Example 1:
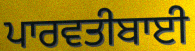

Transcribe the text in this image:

ਪਾਰਵਤੀਬਾਈ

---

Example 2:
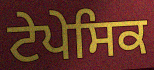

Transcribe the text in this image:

ਟੇਪੇਸਿਕ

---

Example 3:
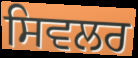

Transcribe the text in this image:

ਸਿਵਲਰ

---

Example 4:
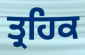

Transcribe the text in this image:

ਤ੍ਰਹਿਕ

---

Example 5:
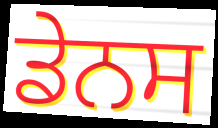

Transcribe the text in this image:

ਡੇਨਸ